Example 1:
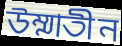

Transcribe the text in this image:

উম্মাতীন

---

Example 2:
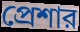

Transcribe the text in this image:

প্রেশার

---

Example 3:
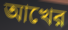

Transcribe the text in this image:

আখের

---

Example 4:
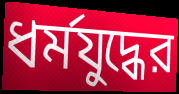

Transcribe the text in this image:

ধর্মযুদ্ধের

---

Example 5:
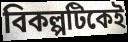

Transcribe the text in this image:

বিকল্পটিকেই